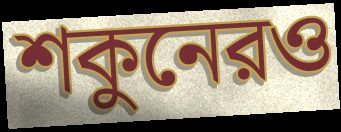
শকুনেরও